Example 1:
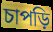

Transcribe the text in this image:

চাপড়ি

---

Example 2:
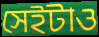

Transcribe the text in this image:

সেইটাও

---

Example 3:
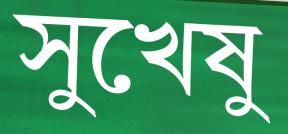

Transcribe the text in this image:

সুখেষু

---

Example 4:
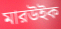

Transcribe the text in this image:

মারউইক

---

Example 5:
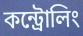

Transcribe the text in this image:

কন্ট্রোলিং